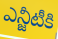
ఎన్జీటీకి